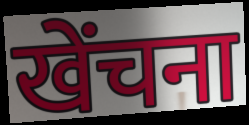
खेंचना